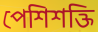
পেশিশক্তি